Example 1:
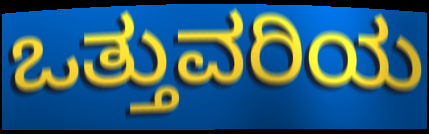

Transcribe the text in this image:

ಒತ್ತುವರಿಯ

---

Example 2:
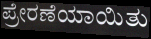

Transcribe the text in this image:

ಪ್ರೇರಣೆಯಾಯಿತು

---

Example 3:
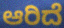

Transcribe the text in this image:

ಆರಿದೆ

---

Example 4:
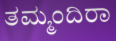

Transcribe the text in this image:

ತಮ್ಮಂದಿರಾ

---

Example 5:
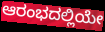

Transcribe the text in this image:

ಆರಂಭದಲ್ಲಿಯೇ